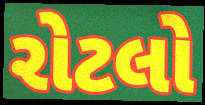
રોટલો